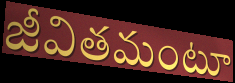
జీవితమంటూ